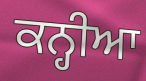
ਕਨ੍ਹੀਆ